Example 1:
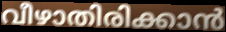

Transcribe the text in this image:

വീഴാതിരിക്കാൻ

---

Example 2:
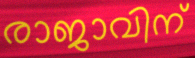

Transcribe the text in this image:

രാജാവിന്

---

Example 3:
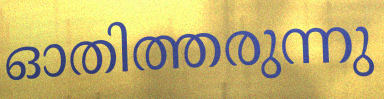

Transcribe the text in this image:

ഓതിത്തരുന്നു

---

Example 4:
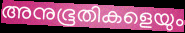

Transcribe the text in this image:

അനുഭൂതികളെയും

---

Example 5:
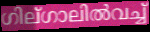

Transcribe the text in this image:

ഗില്ഗാലിൽവച്ച്